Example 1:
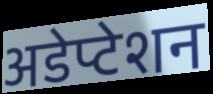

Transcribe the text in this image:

अडेप्टेशन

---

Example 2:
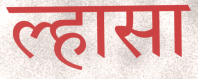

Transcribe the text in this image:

ल्हासा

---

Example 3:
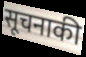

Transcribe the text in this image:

सूचनाकी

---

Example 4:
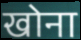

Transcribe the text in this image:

खोना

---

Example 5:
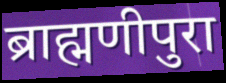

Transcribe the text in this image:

ब्राह्मणीपुरा